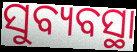
ସୁବ୍ୟବସ୍ଥା